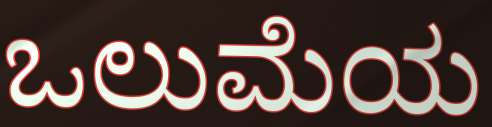
ಒಲುಮೆಯ